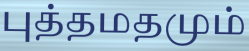
புத்தமதமும்